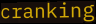
cranking